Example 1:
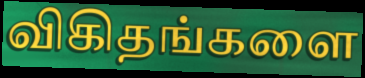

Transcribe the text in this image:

விகிதங்களை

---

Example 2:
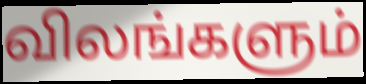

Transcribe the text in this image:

விலங்களும்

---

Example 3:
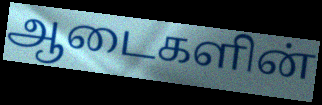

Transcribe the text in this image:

ஆடைகளின்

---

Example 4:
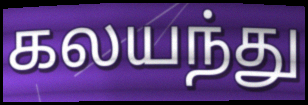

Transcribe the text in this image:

கலயந்து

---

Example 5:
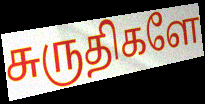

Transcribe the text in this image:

சுருதிகளே